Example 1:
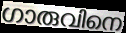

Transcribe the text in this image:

ഗാരുവിനെ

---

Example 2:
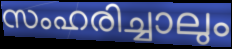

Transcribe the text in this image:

സംഹരിച്ചാലും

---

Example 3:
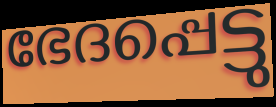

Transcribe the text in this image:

ഭേദപ്പെട്ടു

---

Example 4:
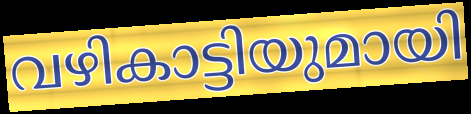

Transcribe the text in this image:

വഴികാട്ടിയുമായി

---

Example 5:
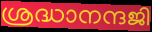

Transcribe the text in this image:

ശ്രദ്ധാനന്ദജി